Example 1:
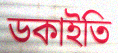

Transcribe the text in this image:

ডকাইতি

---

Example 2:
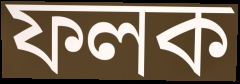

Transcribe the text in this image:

ফলক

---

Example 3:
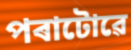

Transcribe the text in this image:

পৰাটোৱে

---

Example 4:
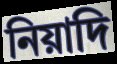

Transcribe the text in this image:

নিয়াদি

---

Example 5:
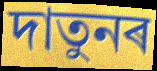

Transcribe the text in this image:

দাতুনৰ